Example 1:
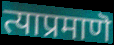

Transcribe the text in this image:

त्याप्रमाणॆ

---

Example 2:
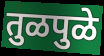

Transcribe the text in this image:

तुळपुळे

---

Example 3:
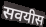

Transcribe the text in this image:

सवयीस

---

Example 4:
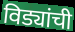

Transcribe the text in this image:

विड्यांची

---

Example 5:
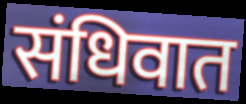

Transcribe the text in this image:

संधिवात